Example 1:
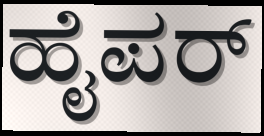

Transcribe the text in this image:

ಹೈಪರ್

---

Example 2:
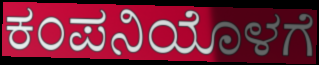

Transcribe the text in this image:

ಕಂಪನಿಯೊಳಗೆ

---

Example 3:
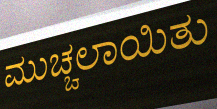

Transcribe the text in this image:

ಮುಚ್ಚಲಾಯಿತು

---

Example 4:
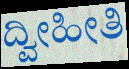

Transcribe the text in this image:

ದ್ವೀಹೀತಿ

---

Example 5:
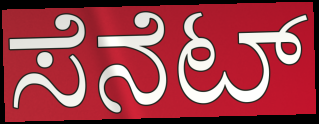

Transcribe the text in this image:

ಸೆನೆಟ್